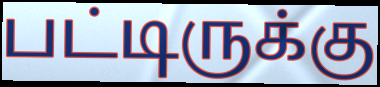
பட்டிருக்கு